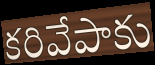
కరివేపాకు